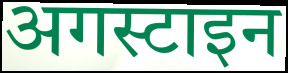
अगस्टाइन